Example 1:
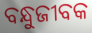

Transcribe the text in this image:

ବନ୍ଧୁଜୀବକ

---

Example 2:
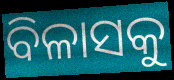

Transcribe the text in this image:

ବିଳାସକୁ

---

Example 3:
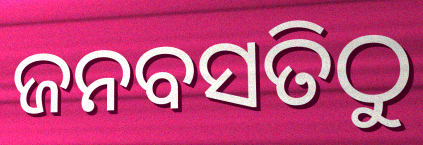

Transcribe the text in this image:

ଜନବସତିଠୁ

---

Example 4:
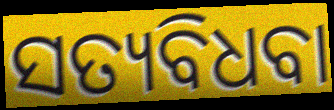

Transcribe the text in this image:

ସତ୍ୟବିଧବା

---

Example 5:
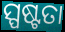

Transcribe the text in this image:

ସ୍ପଷ୍ଟତା